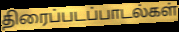
திரைப்படப்பாடல்கள்